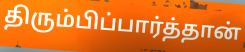
திரும்பிப்பார்த்தான்